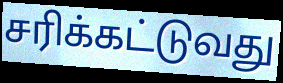
சரிக்கட்டுவது